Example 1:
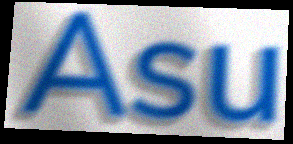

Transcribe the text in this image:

Asu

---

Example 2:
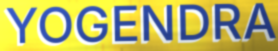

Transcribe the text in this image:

YOGENDRA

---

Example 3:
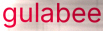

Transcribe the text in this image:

gulabee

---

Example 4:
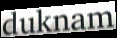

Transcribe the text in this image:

duknam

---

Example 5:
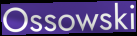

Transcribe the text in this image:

Ossowski